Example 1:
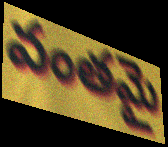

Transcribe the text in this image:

వంతమై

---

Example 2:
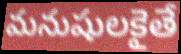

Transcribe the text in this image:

మనుషులకైతే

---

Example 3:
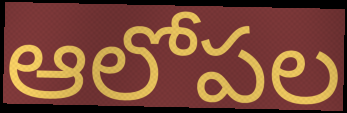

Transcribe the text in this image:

ఆలోపల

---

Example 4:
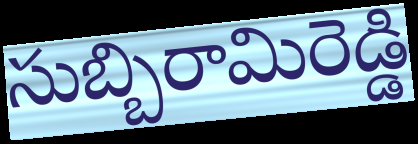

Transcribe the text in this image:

సుబ్బిరామిరెడ్డి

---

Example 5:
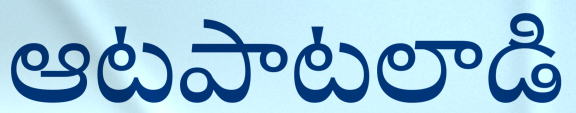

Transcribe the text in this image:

ఆటపాటలాడి